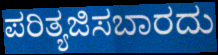
ಪರಿತ್ಯಜಿಸಬಾರದು